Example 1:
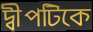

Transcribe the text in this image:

দ্বীপটিকে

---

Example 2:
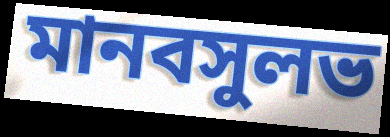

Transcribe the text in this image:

মানবসুলভ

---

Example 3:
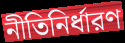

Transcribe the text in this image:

নীতিনির্ধারণ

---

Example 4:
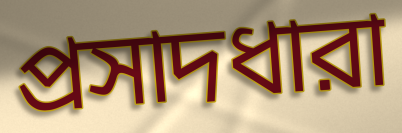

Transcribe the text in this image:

প্রসাদধারা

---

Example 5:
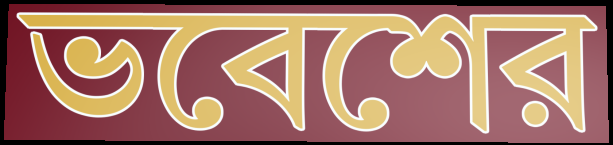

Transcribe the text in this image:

ভবেশের